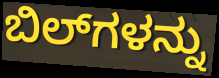
ಬಿಲ್‌ಗಳನ್ನು